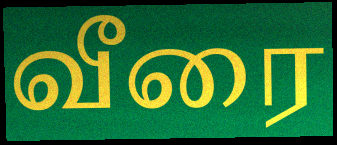
வீரை